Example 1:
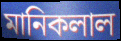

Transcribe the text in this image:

মানিকলাল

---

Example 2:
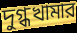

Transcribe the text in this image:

দুগ্ধখামার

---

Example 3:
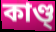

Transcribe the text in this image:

কাণ্ড্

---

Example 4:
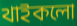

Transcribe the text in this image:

থাইকলো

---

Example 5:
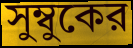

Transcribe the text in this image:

সুম্বুকের